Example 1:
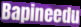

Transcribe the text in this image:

Bapineedu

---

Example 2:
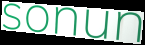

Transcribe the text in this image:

sonun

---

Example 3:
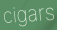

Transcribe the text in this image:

cigars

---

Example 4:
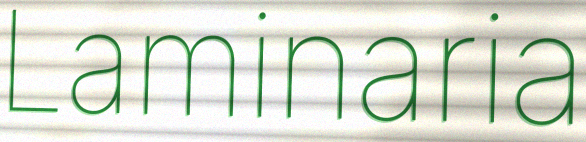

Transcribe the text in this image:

Laminaria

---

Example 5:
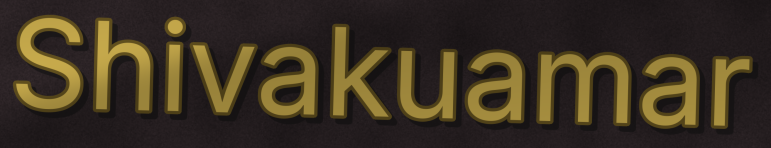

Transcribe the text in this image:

Shivakuamar